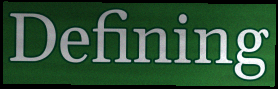
Defining